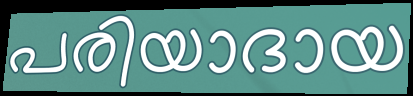
പരിയാദായ